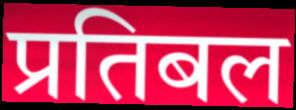
प्रतिबल